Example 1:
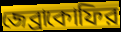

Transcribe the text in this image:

জেব্রাকোফির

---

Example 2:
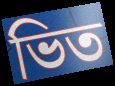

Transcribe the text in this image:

ভিত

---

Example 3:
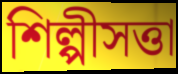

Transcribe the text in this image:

শিল্পীসত্তা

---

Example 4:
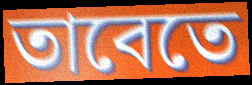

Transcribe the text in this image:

তাবেতে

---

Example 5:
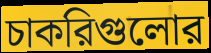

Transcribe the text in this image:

চাকরিগুলোর